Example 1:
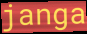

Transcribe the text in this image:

janga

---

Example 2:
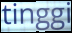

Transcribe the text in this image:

tinggi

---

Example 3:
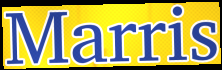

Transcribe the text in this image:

Marris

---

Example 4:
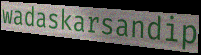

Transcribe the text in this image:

wadaskarsandip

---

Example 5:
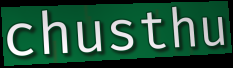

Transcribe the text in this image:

chusthu